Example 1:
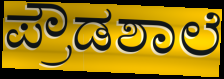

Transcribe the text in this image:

ಪ್ರೌಡಶಾಲೆ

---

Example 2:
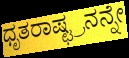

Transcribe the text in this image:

ಧೃತರಾಷ್ಟ್ರನನ್ನೇ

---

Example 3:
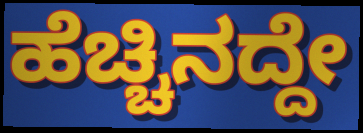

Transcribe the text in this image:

ಹೆಚ್ಚಿನದ್ದೇ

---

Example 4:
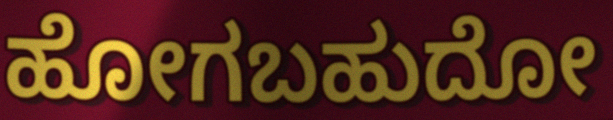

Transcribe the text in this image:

ಹೋಗಬಹುದೋ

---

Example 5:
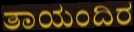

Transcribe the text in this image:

ತಾಯಂದಿರ